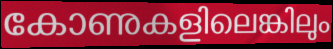
കോണുകളിലെങ്കിലും